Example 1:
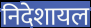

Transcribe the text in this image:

निदेशायल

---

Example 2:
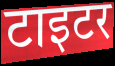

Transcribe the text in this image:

टाइटर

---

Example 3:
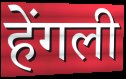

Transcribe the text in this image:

हेंगली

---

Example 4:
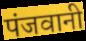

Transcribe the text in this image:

पंजवानी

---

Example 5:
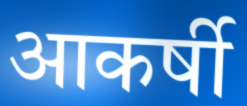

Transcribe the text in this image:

आकर्षी